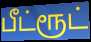
பீட்ரூட்